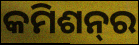
କମିଶନ୍‌ର